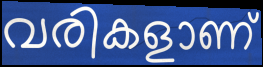
വരികളാണ്